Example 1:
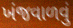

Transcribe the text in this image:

ખંજવાળવું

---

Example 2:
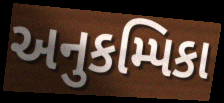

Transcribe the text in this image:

અનુકમ્પિકા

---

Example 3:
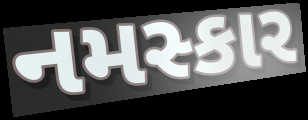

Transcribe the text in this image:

નમસ્કાર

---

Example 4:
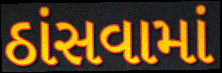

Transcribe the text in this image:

ઠાંસવામાં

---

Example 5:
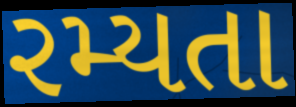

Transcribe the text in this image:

રમ્યતા